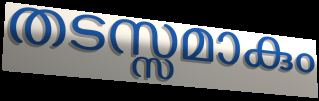
തടസ്സമാകും